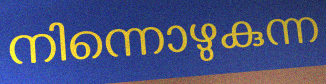
നിന്നൊഴുകുന്ന